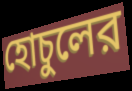
হোচুলের